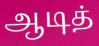
ஆடித்